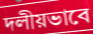
দলীয়ভাবে